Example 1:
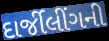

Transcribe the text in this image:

દાર્જીલીંગની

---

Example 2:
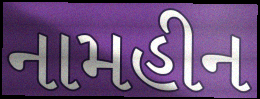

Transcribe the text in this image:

નામહીન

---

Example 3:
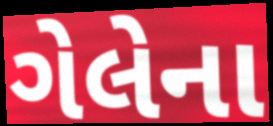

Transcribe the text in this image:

ગેલેના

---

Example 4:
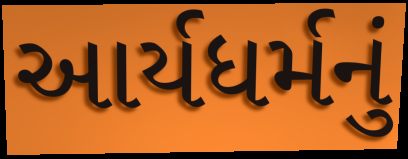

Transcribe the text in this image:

આર્યધર્મનું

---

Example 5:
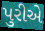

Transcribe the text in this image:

પુરીએ